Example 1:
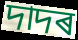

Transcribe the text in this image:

দাদৰ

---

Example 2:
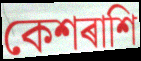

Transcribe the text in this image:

কেশৰাশি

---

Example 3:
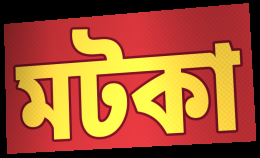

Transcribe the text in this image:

মটকা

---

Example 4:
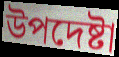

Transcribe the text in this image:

উপদেষ্টা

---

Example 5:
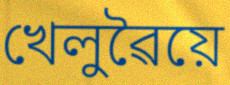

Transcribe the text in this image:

খেলুৱৈয়ে